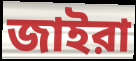
জাইরা